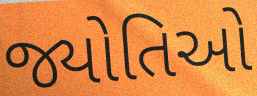
જ્યોતિઓ